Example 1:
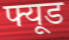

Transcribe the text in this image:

फ्यूड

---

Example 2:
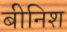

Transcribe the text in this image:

बीनिश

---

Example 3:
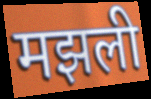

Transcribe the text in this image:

मझली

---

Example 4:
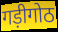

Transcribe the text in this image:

गड़ीगोठ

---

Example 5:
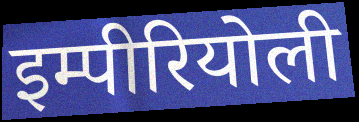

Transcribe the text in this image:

इम्पीरियोली